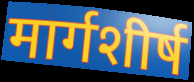
मार्गशीर्ष